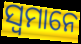
ସ୍ୱମାନେ